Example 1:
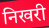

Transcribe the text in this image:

निखरी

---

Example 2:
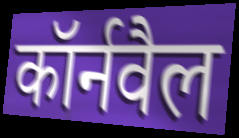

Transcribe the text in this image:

कॉर्नवैल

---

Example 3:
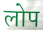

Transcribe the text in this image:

लोप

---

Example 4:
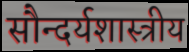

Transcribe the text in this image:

सौन्दर्यशास्त्रीय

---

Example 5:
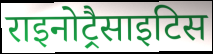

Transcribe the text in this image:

राइनोट्रैसाइटिस